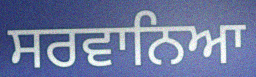
ਸਰਵਾਨਿਆ